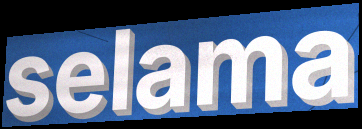
selama